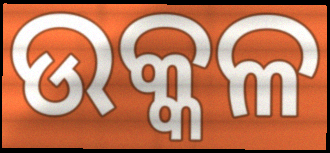
ଉକ୍କଳ